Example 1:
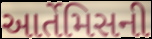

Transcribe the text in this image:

આર્તેમિસની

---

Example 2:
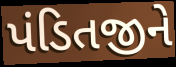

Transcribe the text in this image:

પંડિતજીને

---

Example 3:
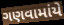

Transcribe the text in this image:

ગણવામાંયે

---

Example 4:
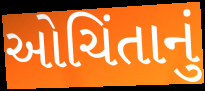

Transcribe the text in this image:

ઓચિંતાનું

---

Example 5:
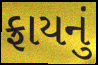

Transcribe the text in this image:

ફ્રાયનું